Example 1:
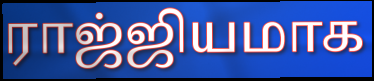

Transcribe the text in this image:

ராஜ்ஜியமாக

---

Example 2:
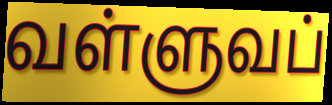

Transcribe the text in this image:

வள்ளுவப்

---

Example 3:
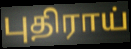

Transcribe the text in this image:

புதிராய்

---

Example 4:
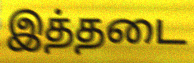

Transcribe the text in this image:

இத்தடை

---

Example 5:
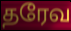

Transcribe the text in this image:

தரேவ